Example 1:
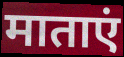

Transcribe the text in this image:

माताएं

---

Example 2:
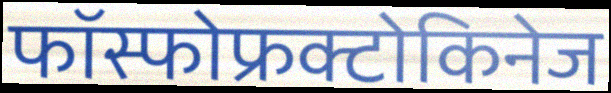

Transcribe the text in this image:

फॉस्फोफ्रक्टोकिनेज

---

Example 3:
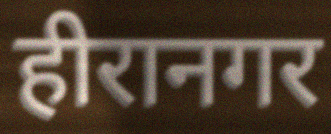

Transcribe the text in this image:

हीरानगर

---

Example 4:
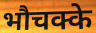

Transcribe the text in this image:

भौचक्के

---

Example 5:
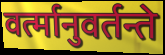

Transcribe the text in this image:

वर्त्मानुवर्तन्ते